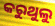
କରୁଥୁଲୁ